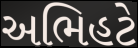
અભિહટે